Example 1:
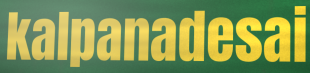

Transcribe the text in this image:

kalpanadesai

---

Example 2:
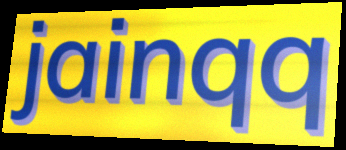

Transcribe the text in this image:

jainqq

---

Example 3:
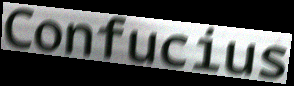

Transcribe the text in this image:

Confucius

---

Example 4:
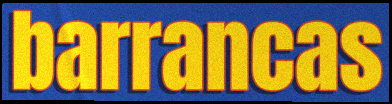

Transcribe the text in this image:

barrancas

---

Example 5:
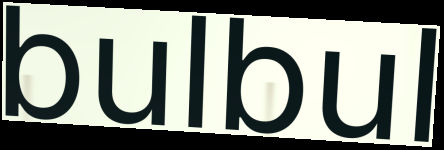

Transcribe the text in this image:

bulbul